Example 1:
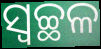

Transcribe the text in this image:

ସ୍ବଚ୍ଛଳ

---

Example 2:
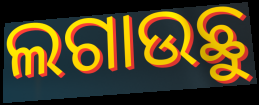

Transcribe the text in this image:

ଲଗାଉଛୁ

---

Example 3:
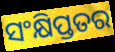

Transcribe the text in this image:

ସଂକ୍ଷିପ୍ତତର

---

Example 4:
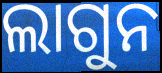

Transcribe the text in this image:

ଲାଗୁନ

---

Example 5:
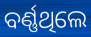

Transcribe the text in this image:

ବର୍ଣ୍ଣଥିଲେ